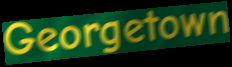
Georgetown